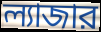
ল্যাজার